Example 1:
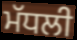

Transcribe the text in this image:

ਮੱਧਲੀ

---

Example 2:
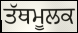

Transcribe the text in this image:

ਤੱਥਮੂਲਕ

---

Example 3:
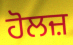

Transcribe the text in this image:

ਹੋਲਜ਼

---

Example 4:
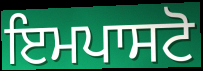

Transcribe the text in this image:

ਇਮਪਾਸਟੋ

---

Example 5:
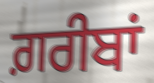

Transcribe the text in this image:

ਗ਼ਰੀਬਾਂ